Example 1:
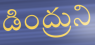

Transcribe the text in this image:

డింద్రుని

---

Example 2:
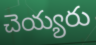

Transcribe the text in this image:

చెయ్యరు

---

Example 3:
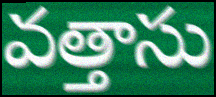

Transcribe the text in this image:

వత్తాసు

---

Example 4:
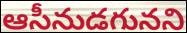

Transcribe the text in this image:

ఆసీనుడగునని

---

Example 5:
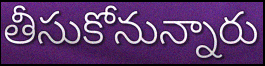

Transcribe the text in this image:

తీసుకోనున్నారు